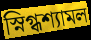
স্নিগ্ধশ্যামল